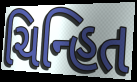
ચિન્હિત